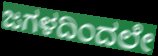
ಜಗಳದಿಂದಲೇ